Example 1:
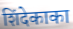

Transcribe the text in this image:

शिंदेकाका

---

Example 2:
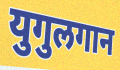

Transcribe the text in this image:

युगुलगान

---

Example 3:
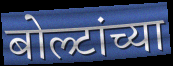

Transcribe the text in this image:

बोल्टांच्या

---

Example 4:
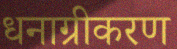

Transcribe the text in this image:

धनाग्रीकरण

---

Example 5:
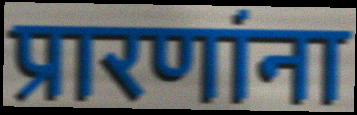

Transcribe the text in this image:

प्रारणांना